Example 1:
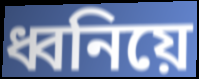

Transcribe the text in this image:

ধ্বনিয়ে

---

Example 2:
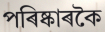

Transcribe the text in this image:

পৰিষ্কাৰকৈ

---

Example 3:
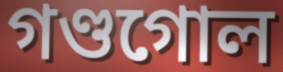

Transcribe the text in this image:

গণ্ডগোল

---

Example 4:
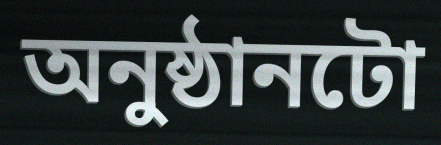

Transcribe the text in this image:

অনুষ্ঠানটো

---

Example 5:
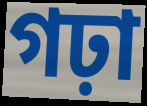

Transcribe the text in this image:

গঢ়া